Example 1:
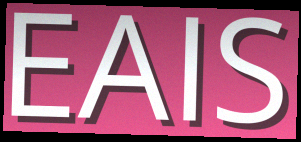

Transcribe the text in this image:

EAIS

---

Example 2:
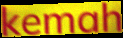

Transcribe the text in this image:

kemah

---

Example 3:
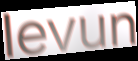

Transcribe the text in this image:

levun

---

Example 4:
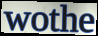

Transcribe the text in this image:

wothe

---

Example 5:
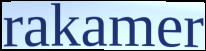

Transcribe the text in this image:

rakamer